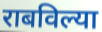
राबविल्या